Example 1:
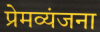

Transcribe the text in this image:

प्रेमव्यंजना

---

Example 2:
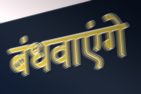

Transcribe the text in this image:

बंधवाएंगे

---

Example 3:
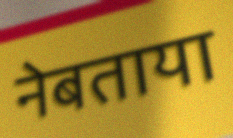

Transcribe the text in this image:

नेबताया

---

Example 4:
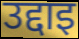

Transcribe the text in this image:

उद्दाइ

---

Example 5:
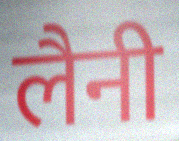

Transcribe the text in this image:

लैनी